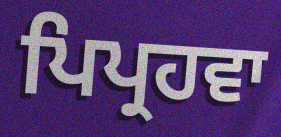
ਪਿਪ੍ਰਹਵਾ